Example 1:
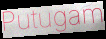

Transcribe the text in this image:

Putugam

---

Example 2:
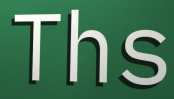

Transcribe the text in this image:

Ths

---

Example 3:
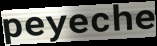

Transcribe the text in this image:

peyeche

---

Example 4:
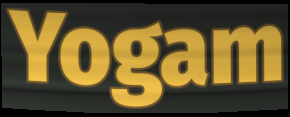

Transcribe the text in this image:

Yogam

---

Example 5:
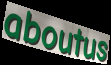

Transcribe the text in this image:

aboutus